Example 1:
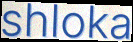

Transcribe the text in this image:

shloka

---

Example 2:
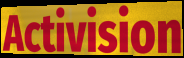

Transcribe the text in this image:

Activision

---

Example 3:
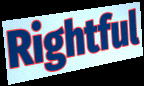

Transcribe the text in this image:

Rightful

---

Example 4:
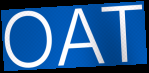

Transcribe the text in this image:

OAT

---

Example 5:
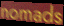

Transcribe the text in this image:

nomads